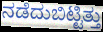
ನಡೆದುಬಿಟ್ಟಿತ್ತು